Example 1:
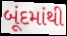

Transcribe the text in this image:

બૂંદમાંથી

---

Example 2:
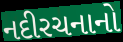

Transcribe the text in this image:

નદીરચનાનો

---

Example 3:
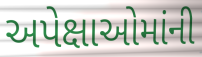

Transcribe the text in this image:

અપેક્ષાઓમાંની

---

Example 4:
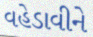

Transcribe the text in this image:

વહેડાવીને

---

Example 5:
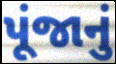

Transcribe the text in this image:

પૂંજાનું